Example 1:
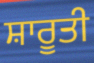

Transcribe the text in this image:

ਸ਼ਾਰੂਤੀ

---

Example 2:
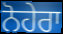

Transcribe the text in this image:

ਨੋਹੇਰਾ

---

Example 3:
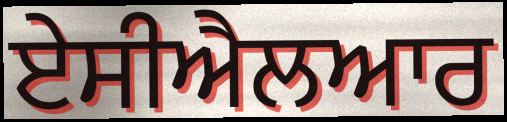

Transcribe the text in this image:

ਏਸੀਐਲਆਰ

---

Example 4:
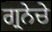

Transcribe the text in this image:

ਗ੍ਰਨੇਚੇ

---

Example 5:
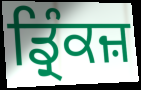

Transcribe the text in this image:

ਡ੍ਰਿੰਕਜ਼